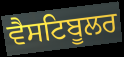
ਵੈਸਟਿਬੂਲਰ